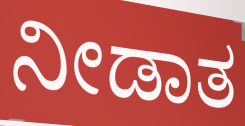
ನೀಡಾತ